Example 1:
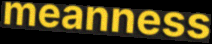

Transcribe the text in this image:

meanness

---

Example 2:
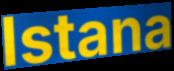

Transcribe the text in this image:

Istana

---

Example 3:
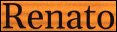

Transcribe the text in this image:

Renato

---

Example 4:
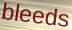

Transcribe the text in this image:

bleeds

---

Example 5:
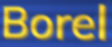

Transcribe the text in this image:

Borel